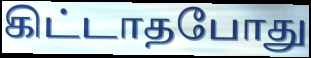
கிட்டாதபோது